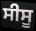
ਸੀਸੂ